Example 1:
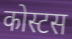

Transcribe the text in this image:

कोस्टस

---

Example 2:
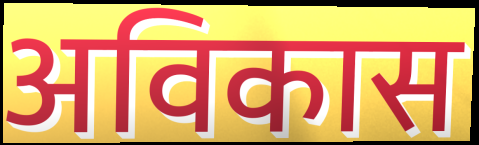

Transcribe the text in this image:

अविकास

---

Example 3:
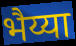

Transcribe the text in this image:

भैय्या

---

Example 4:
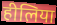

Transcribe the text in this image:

हीलिया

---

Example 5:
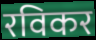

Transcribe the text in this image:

रविकर